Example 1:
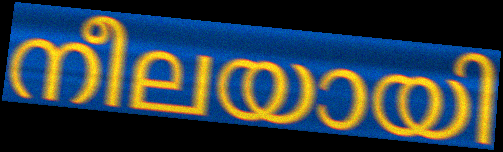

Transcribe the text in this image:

നീലയായി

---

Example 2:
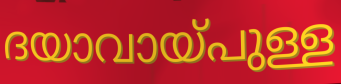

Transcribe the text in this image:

ദയാവായ്പുള്ള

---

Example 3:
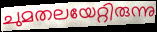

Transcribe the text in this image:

ചുമതലയേറ്റിരുന്നു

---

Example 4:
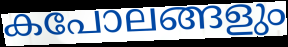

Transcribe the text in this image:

കപോലങ്ങളും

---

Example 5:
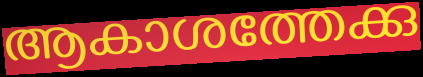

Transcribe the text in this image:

ആകാശത്തേക്കു